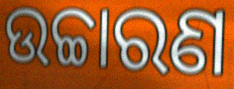
ଉଚ୍ଚାରଣ